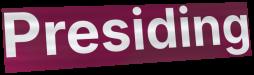
Presiding